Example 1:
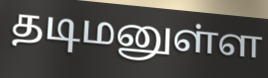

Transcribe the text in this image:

தடிமனுள்ள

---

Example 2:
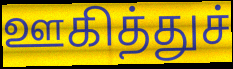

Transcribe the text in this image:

ஊகித்துச்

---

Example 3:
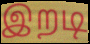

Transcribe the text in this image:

இறடி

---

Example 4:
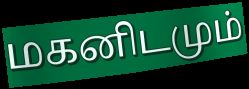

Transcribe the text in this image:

மகனிடமும்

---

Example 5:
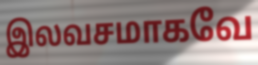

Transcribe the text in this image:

இலவசமாகவே